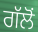
ਗੱਲੋਂ